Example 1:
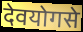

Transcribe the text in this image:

देवयोगसे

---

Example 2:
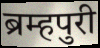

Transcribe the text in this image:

ब्रम्हपुरी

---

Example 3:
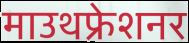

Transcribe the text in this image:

माउथफ्रेशनर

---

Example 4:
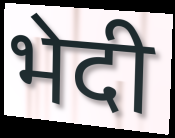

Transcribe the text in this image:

भेदी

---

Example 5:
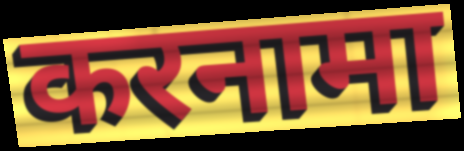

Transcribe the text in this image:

करनामा